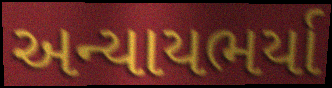
અન્યાયભર્યા